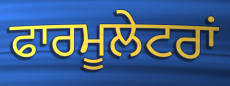
ਫਾਰਮੂਲੇਟਰਾਂ